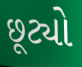
છૂટ્યો